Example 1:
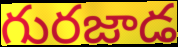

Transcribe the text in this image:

గురజాడ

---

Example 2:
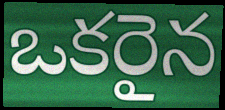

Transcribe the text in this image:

ఒకరైన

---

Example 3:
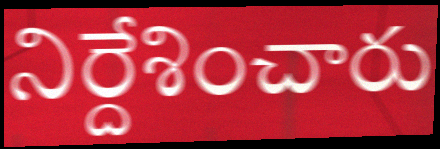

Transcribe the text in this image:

నిర్దేశించారు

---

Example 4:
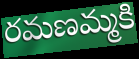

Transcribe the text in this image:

రమణమ్మకి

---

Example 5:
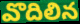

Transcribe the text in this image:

వొదిలిన